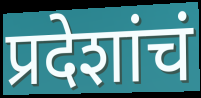
प्रदेशांचं